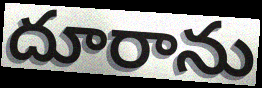
దూరాను